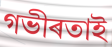
গভীৰতাই